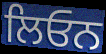
ਲਿਓਨ